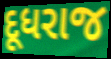
દૂધરાજ